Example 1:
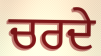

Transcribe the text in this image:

ਚਰਦੇ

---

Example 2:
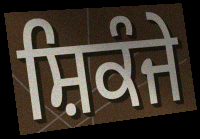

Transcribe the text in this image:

ਸ਼ਿਕੰਜੇ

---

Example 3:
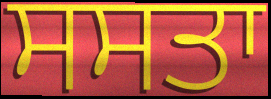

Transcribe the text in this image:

ਸਸਤਾ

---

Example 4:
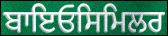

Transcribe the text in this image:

ਬਾਇਓਸਿਮਿਲਰ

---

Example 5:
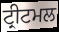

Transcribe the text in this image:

ਟ੍ਰੀਟਮਲ